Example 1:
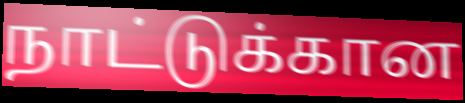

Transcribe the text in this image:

நாட்டுக்கான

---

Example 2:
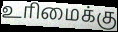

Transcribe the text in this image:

உரிமைக்கு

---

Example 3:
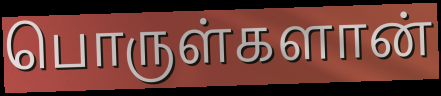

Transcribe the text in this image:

பொருள்களான்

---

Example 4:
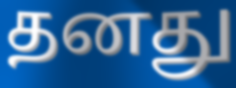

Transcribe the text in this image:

தனது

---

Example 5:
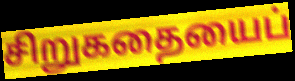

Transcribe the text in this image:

சிறுகதையைப்